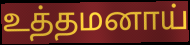
உத்தமனாய்